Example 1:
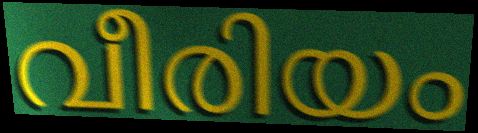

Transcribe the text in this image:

വീരിയം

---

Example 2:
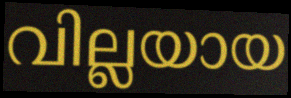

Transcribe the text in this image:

വില്ലയായ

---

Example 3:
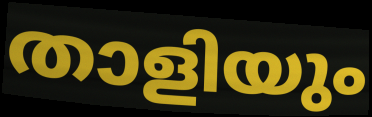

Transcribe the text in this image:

താളിയും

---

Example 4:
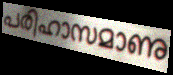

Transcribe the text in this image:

പരിഹാസമാണു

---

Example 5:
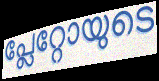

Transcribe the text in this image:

പ്ലേറ്റോയുടെ